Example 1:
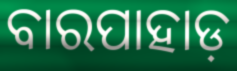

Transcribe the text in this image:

ବାରପାହାଡ଼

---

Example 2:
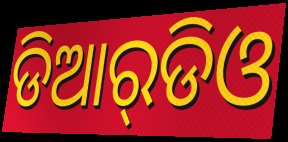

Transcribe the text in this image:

ଡିଆର୍‌ଡିଓ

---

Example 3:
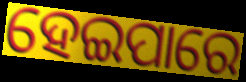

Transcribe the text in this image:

ହେଇପାରେ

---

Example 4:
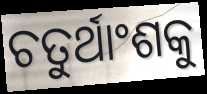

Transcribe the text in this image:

ଚତୁର୍ଥାଂଶକୁ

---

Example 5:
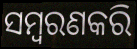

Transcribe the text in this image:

ସମ୍ବରଣକରି